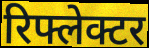
रिफ्लेक्टर